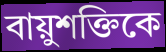
বায়ুশক্তিকে